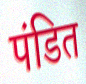
पंडित